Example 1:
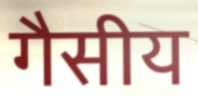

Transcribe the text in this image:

गैसीय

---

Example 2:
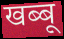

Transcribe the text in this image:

खब्बू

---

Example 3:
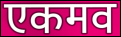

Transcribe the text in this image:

एकमव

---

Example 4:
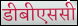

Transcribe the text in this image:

डीबीएससी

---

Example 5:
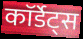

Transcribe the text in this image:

कॉर्डेट्स